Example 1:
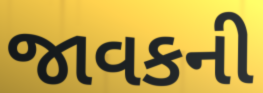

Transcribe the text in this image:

જાવકની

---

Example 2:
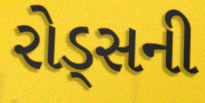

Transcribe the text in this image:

રોડ્સની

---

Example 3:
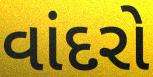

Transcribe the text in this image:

વાંદરો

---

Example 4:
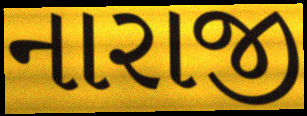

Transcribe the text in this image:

નારાજી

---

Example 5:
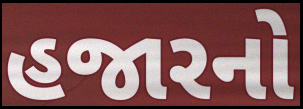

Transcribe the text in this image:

હજારનો